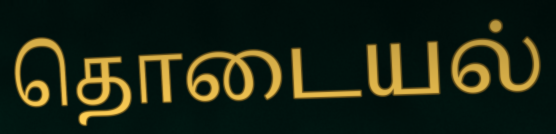
தொடையல்